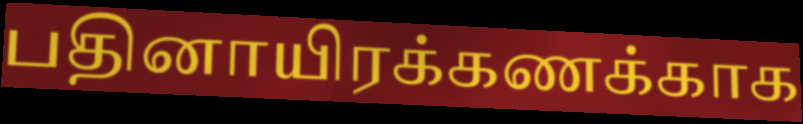
பதினாயிரக்கணக்காக